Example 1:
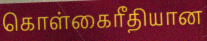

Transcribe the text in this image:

கொள்கைரீதியான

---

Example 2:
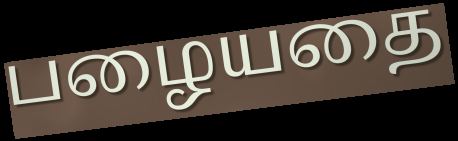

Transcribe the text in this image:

பழையதை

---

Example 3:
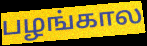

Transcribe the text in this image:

பழங்கால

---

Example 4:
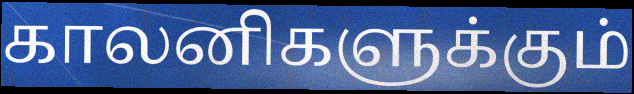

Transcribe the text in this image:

காலனிகளுக்கும்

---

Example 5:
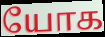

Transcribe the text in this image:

யோக